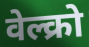
वेल्क्रो